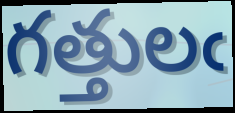
గత్తులఁ